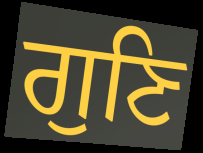
ਗੁਣਿ